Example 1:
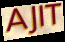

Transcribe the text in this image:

AJIT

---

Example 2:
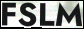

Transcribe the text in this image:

FSLM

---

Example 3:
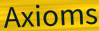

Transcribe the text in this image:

Axioms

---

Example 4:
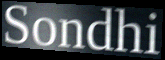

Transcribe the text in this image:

Sondhi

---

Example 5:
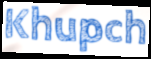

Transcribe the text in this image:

Khupch